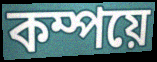
কম্পয়ে